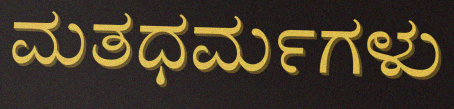
ಮತಧರ್ಮಗಳು